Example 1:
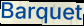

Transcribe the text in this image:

Barquet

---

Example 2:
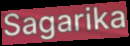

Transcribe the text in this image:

Sagarika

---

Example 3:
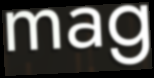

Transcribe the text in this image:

mag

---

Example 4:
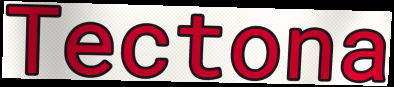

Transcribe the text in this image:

Tectona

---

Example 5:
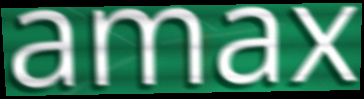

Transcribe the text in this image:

amax